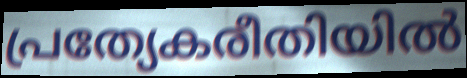
പ്രത്യേകരീതിയിൽ